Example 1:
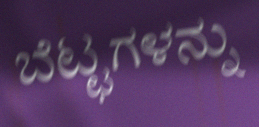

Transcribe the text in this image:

ಬೆಟ್ಟಗಳನ್ನು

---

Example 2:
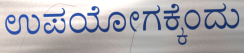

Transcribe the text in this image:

ಉಪಯೋಗಕ್ಕೆಂದು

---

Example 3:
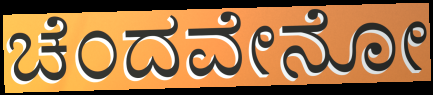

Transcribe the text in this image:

ಚೆಂದವೇನೋ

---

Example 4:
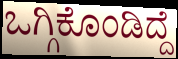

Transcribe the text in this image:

ಒಗ್ಗಿಕೊಂಡಿದ್ದೆ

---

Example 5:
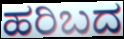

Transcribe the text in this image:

ಹರಿಬದ